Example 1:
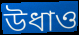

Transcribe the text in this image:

উধাও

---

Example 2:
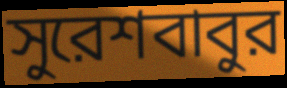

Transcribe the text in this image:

সুরেশবাবুর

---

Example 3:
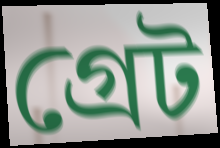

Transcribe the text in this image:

গ্রেট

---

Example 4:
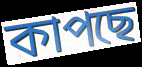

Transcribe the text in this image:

কাপছে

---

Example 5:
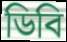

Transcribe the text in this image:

ডিবি